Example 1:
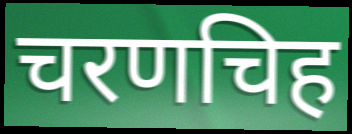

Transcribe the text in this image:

चरणचिह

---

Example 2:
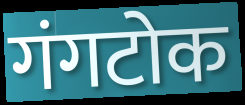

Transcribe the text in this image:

गंगटोक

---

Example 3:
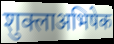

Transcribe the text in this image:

शुक्लाअभिषेक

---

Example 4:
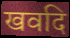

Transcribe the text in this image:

खवदि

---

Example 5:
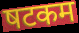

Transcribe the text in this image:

षटकम